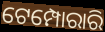
ଟେମ୍ପୋରାରି